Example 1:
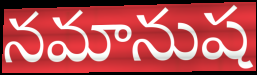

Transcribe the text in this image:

నమానుష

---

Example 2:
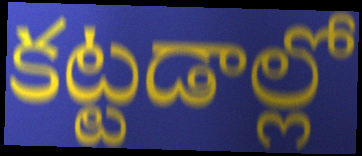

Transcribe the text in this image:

కట్టడాల్లో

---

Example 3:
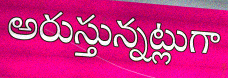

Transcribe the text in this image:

అరుస్తున్నట్లుగా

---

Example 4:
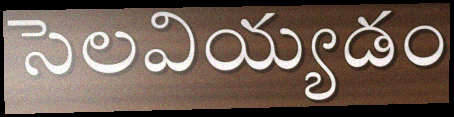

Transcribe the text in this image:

సెలవియ్యడం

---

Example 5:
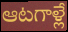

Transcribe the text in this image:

ఆటగాళ్లే